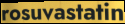
rosuvastatin